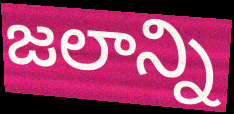
జలాన్ని